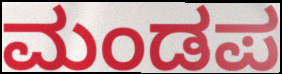
ಮಂಡಪ